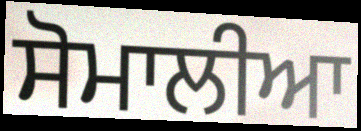
ਸੋਮਾਲੀਆ